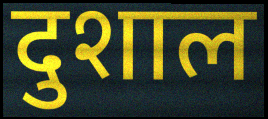
दुशाल